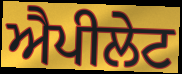
ਐਪੀਲੇਟ